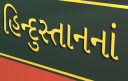
હિન્દુસ્તાનનાં